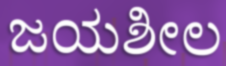
ಜಯಶೀಲ